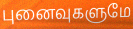
புனைவுகளுமே